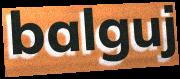
balguj